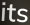
its